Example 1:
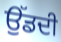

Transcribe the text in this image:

ਉੱਡਦੀ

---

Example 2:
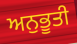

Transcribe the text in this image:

ਅਨੁਭੂਤੀ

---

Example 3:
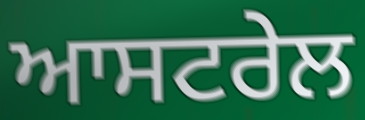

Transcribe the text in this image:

ਆਸਟਰੇਲ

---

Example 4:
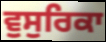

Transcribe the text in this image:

ਵੁਸੁਰਿਕਾ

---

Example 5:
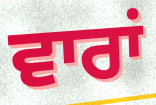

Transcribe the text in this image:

ਵਾਰਾਂ